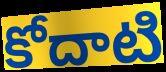
కోదాటి